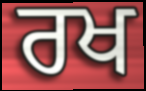
ਰਖ